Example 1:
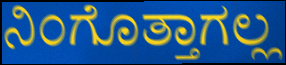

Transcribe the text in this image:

ನಿಂಗೊತ್ತಾಗಲ್ಲ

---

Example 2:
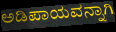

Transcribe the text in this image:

ಅಡಿಪಾಯವನ್ನಾಗಿ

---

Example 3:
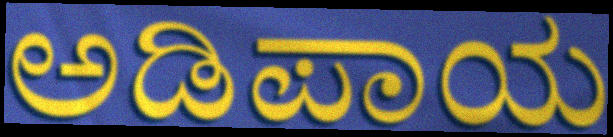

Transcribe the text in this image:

ಅಡಿಪಾಯ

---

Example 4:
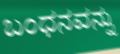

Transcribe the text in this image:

ಬಂಧನವನ್ನು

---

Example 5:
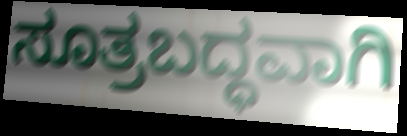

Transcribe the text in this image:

ಸೂತ್ರಬದ್ಧವಾಗಿ